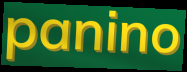
panino